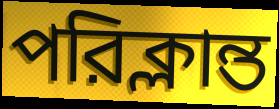
পরিক্লান্ত